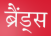
ब्रैंड्स